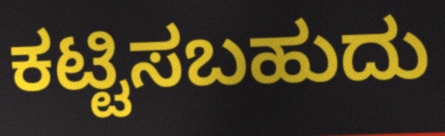
ಕಟ್ಟಿಸಬಹುದು